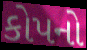
કોપનો